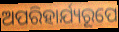
ଅପରିହାର୍ଯ୍ୟରୂପେ